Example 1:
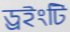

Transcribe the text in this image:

ড্রইংটি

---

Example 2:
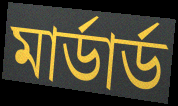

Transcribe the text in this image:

মার্ডার্ড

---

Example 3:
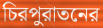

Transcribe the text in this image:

চিরপুরাতনের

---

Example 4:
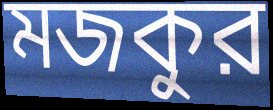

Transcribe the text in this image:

মজকুর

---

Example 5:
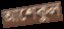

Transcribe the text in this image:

আশেকুল